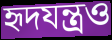
হৃদযন্ত্রও